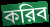
করিব